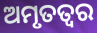
ଅମୃତତ୍ଵର